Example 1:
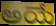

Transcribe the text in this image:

అయే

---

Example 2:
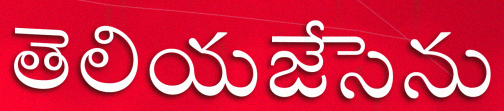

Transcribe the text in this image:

తెలియజేసెను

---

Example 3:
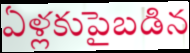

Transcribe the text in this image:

ఏళ్లకుపైబడిన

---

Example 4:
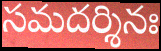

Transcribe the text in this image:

సమదర్శినః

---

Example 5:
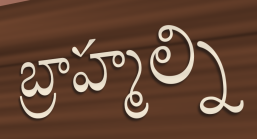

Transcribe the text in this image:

బ్రాహ్మల్ని